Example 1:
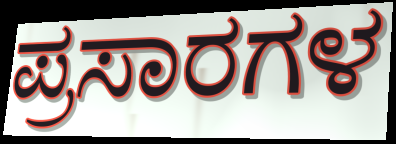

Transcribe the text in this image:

ಪ್ರಸಾರಗಳ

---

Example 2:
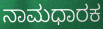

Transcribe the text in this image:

ನಾಮಧಾರಕ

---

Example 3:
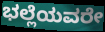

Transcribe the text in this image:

ಭಲ್ಲೆಯವರೇ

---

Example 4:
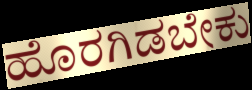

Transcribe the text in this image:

ಹೊರಗಿಡಬೇಕು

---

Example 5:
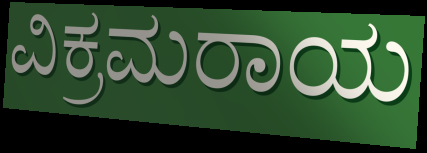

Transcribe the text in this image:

ವಿಕ್ರಮರಾಯ